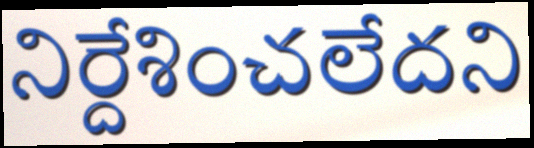
నిర్దేశించలేదని